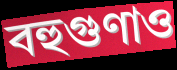
বহুগুণাও